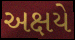
અક્ષયે